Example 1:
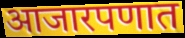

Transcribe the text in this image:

आजारपणात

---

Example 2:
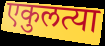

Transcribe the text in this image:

एकुलत्या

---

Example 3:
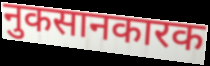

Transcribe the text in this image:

नुकसानकारक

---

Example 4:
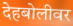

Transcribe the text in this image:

देहबोलीवर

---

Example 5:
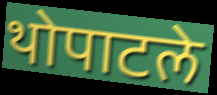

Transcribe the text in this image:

थोपाटले